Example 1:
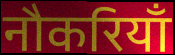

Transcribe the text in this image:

नौकरियाँ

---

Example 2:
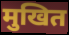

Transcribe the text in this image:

मुखित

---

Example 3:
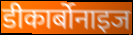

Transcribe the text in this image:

डीकार्बोनाइज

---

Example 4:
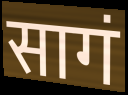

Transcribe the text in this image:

सागं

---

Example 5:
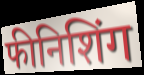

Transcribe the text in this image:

फीनिशिंग